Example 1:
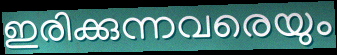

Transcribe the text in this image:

ഇരിക്കുന്നവരെയും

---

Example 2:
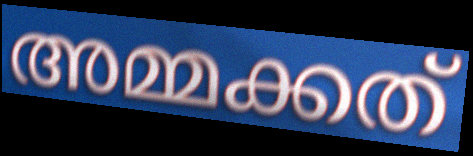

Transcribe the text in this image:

അമ്മക്കത്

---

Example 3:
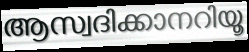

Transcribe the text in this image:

ആസ്വദിക്കാനറിയൂ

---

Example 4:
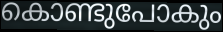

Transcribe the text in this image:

കൊണ്ടുപോകും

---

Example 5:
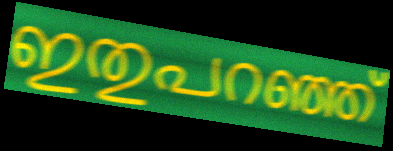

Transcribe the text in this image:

ഇതുപറഞ്ഞ്